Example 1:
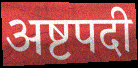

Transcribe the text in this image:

अष्टपदी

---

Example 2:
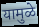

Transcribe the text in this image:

यामुळे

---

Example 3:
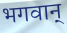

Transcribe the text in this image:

भगवान्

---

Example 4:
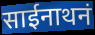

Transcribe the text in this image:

साईनाथनं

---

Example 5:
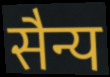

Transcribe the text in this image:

सैन्य